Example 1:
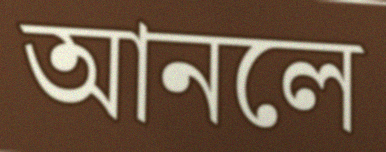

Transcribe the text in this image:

আনলে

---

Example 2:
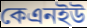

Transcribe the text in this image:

কেএনইউ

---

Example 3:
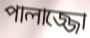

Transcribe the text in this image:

পালাজ্জো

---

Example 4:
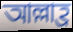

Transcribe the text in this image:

আল্লাহ্র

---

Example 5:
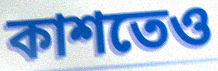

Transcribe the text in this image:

কাশতেও